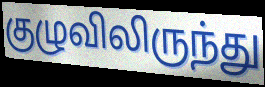
குழுவிலிருந்து